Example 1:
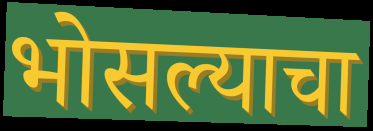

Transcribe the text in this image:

भोसल्याचा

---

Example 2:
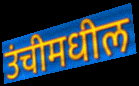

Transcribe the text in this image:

उंचीमधील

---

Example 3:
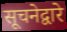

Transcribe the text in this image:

सूचनेद्वारे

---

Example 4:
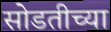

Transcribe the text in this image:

सोडतीच्या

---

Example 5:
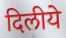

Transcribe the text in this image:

दिलीये